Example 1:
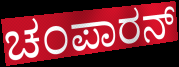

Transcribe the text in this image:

ಚಂಪಾರನ್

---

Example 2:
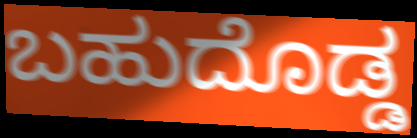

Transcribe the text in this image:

ಬಹುದೊಡ್ಡ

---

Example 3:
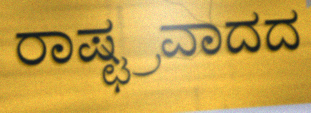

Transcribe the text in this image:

ರಾಷ್ಟ್ರವಾದದ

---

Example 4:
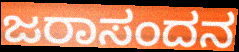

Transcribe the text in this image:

ಜರಾಸಂದನ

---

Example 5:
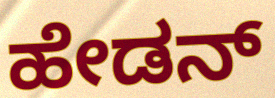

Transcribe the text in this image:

ಹೇಡನ್